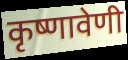
कृष्णावेणी